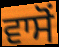
ਵਾਸੋਂ